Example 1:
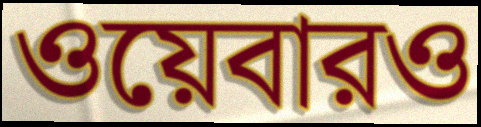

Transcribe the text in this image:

ওয়েবারও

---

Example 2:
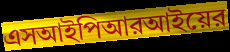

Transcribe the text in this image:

এসআইপিআরআইয়ের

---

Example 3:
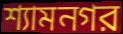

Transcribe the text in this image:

শ্যামনগর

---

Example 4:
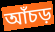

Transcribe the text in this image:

আঁচড়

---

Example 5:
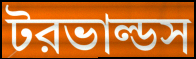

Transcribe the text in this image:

টরভাল্ডস